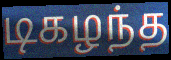
டிகழந்த